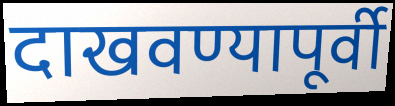
दाखवण्यापूर्वी